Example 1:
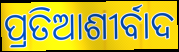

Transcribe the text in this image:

ପ୍ରତିଆଶୀର୍ବାଦ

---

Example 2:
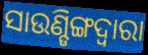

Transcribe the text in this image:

ସାଉଣ୍ଡିଙ୍ଗଦ୍ୱାରା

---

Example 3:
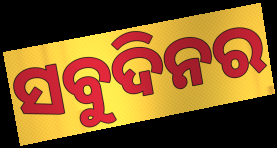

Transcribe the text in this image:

ସବୁଦିନର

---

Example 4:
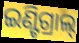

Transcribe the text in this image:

ଇଣ୍ଟିଗ୍ରାଲ୍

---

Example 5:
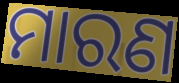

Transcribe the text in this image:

ମାରଣ